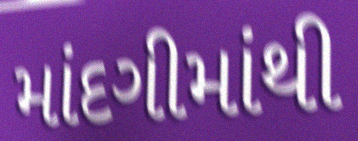
માંદગીમાંથી